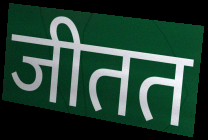
जीतत